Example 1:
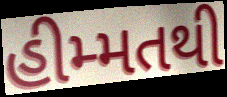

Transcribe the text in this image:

હીમ્મતથી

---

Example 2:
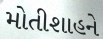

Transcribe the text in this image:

મોતીશાહને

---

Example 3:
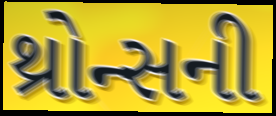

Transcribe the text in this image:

થ્રોન્સની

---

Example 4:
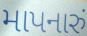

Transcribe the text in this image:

માપનારું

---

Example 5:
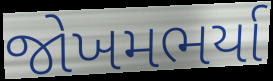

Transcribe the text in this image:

જોખમભર્યા